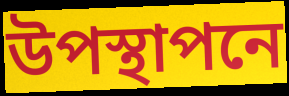
উপস্থাপনে